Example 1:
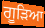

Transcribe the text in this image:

ਗੂੜਿਆ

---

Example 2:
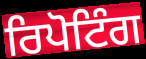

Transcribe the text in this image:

ਰਿਪੋਟਿੰਗ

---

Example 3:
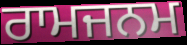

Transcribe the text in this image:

ਰਾਮਜਨਮ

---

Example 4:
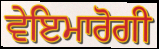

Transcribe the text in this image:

ਵੇਇਮਾਰੋਗੀ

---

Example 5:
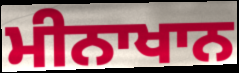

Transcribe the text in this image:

ਮੀਨਾਖਾਨ